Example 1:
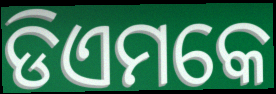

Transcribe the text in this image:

ଡିଏମକେ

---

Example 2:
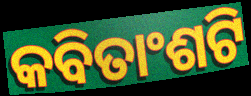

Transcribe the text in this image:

କବିତାଂଶଟି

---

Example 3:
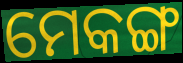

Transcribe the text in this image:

ମେକଙ୍ଗ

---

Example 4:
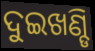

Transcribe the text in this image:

ଦୁଇଖଣ୍ଡି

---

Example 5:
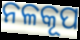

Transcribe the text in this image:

ନଳକୂପ